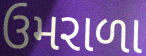
ઉમરાળા